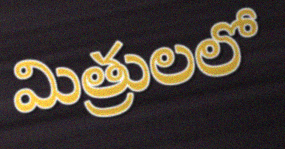
మిత్రులలో